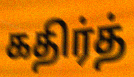
கதிர்த்